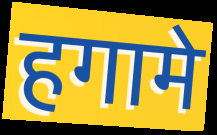
हगामे